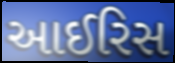
આઈરિસ